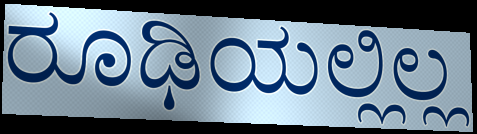
ರೂಢಿಯಲ್ಲಿಲ್ಲ